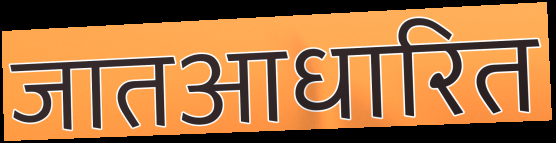
जातआधारित